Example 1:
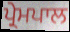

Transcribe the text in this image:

ਪ੍ਰੇਮਪਾਲ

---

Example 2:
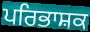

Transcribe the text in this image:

ਪਰਿਭਾਸ਼ਕ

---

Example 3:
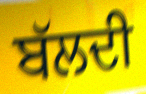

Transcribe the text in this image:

ਬੱਲਦੀ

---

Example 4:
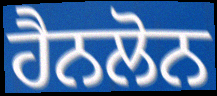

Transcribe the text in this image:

ਹੈਨਲੋਨ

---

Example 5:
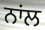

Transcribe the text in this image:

ਨਾਂਲ